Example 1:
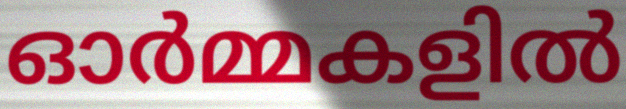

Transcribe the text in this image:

ഓർമ്മകളിൽ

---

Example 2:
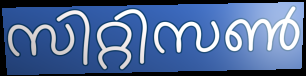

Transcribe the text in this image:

സിറ്റിസൺ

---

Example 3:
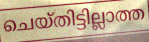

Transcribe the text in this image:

ചെയ്തിട്ടില്ലാത്ത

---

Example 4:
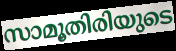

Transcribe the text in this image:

സാമൂതിരിയുടെ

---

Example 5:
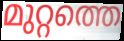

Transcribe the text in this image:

മുറ്റത്തെ